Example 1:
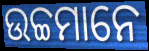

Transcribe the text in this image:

ଉଚ୍ଚମାନେ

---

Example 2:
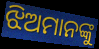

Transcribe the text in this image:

ଝିଅମାନଙ୍କୁ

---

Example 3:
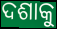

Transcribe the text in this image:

ଦଶାକୁ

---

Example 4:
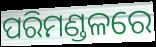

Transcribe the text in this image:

ପରିମଣ୍ଡଳରେ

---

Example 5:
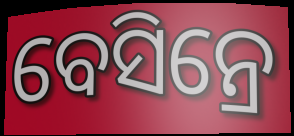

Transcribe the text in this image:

ବେସିନ୍ରେ